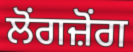
ਲੋਂਗਜ਼ੋਂਗ